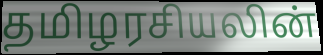
தமிழரசியலின்